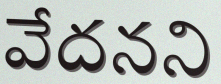
వేదనని